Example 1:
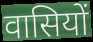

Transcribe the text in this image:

वासियों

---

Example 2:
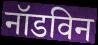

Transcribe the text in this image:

नॉडविन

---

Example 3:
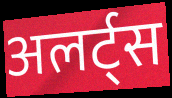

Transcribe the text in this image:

अलर्ट्स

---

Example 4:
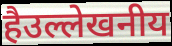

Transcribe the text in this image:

हैउल्लेखनीय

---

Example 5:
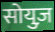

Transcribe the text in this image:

सोयुज़